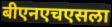
बीएनएचएसला